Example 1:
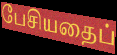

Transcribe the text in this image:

பேசியதைப்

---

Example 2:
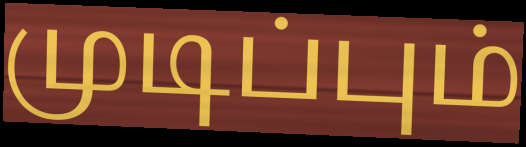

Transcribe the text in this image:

முடிப்பும்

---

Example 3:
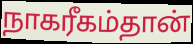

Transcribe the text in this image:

நாகரீகம்தான்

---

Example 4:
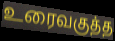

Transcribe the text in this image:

உரைவகுத்த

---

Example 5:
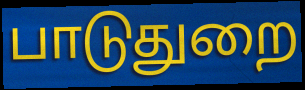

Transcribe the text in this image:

பாடுதுறை